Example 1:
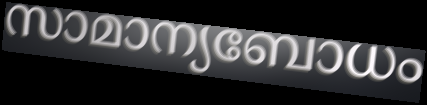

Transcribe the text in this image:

സാമാന്യബോധം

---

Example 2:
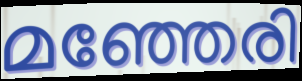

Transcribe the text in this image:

മഞ്ഞേരി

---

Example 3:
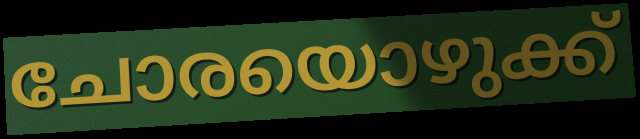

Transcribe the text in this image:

ചോരയൊഴുക്ക്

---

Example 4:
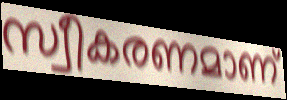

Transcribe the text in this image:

സ്വീകരണമാണ്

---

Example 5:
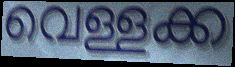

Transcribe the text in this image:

വെള്ളക്ക